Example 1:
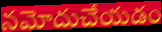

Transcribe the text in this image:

నమోదుచేయడం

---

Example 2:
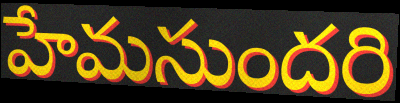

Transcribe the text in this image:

హేమసుందరి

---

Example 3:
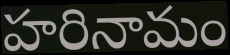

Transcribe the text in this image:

హరినామం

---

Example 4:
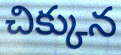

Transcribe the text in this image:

చిక్కున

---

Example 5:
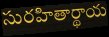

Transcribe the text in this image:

సురహితార్థాయ